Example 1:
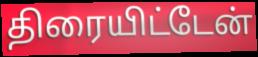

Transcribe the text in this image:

திரையிட்டேன்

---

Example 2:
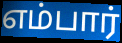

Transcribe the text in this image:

எம்பார்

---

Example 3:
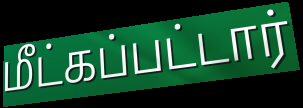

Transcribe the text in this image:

மீட்கப்பட்டார்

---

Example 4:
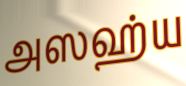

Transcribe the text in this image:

அஸஹ்ய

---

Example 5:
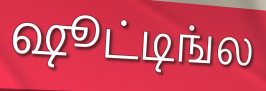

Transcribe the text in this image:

ஷூட்டிங்ல